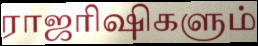
ராஜரிஷிகளும்